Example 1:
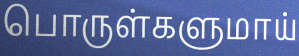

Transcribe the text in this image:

பொருள்களுமாய்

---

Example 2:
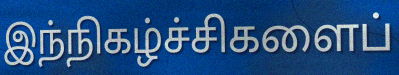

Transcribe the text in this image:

இந்நிகழ்ச்சிகளைப்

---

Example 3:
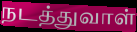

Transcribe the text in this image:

நடத்துவாள்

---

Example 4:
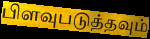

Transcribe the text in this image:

பிளவுபடுத்தவும்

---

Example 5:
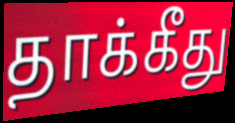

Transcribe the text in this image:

தாக்கீது